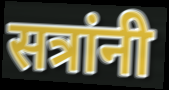
सत्रांनी